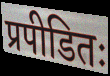
प्रपीडितः